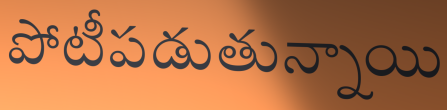
పోటీపడుతున్నాయి